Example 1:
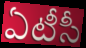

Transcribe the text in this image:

ఏటీసీ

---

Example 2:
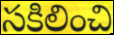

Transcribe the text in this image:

సకిలించి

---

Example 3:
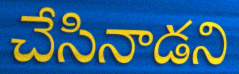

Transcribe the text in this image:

చేసినాడని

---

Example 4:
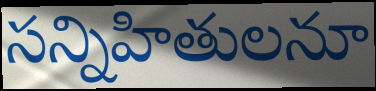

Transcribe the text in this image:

సన్నిహితులనూ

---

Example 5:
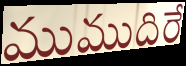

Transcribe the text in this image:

ముముదిరే